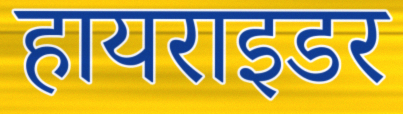
हायराइडर